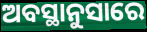
ଅବସ୍ଥାନୁସାରେ